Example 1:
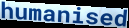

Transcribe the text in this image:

humanised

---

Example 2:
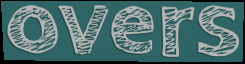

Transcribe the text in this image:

overs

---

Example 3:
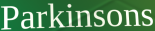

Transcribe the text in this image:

Parkinsons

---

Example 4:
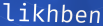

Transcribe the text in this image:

likhben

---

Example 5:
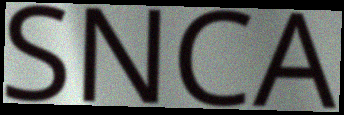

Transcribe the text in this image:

SNCA